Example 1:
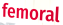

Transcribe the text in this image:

femoral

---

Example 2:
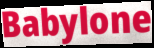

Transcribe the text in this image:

Babylone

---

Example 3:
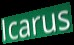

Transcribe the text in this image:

Icarus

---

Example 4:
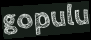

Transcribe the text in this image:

gopulu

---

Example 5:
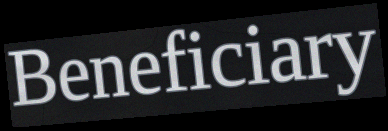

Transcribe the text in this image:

Beneficiary